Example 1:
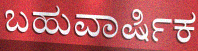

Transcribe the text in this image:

ಬಹುವಾರ್ಷಿಕ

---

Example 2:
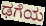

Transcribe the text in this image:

ಢಗೆಯ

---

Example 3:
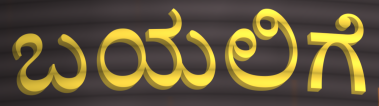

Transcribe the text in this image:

ಬಯಲಿಗೆ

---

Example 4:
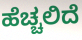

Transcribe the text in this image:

ಹೆಚ್ಚಲಿದೆ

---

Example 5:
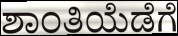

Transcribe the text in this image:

ಶಾಂತಿಯೆಡೆಗೆ